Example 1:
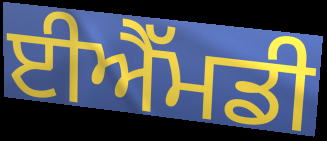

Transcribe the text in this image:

ਈਐੱਮਡੀ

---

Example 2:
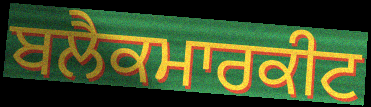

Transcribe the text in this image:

ਬਲੈਕਮਾਰਕੀਟ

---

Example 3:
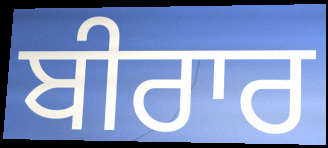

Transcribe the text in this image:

ਬੀਰਾਰ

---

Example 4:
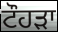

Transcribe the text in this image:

ਟੌਹਡ਼ਾ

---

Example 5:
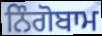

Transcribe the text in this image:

ਨਿੰਗੋਬਾਮ